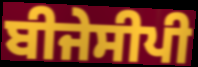
ਬੀਜੇਸੀਪੀ